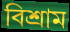
বিশ্ৰাম